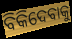
ବିକିଦେବାକୁ